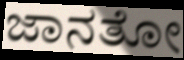
ಜಾನತೋ